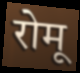
रोमू